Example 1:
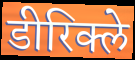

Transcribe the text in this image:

डीरिक्ले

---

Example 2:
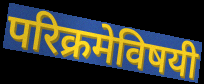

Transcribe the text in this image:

परिक्रमेविषयी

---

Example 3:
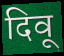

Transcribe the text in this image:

दिवू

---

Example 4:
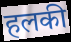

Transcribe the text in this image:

हलकी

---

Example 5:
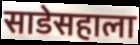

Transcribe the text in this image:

साडेसहाला